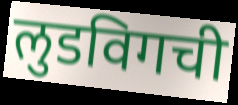
लुडविगची